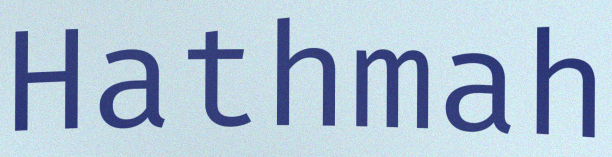
Hathmah